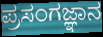
ಪ್ರಸಂಗಜ್ಞಾನ